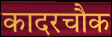
कादरचौक